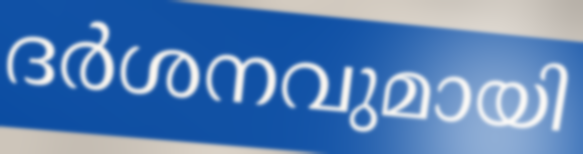
ദർശനവുമായി